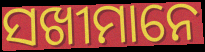
ସଖୀମାନେ